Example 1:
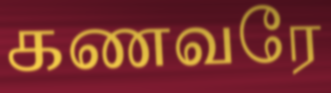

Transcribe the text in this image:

கணவரே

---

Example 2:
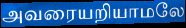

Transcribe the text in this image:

அவரையறியாமலே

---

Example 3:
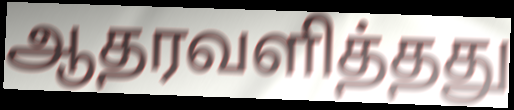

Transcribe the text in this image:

ஆதரவளித்தது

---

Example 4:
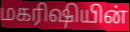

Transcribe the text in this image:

மகரிஷியின்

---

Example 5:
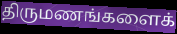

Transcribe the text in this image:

திருமணங்களைக்